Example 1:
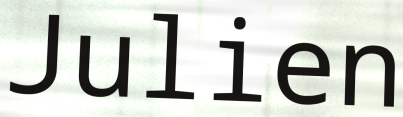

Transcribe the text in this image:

Julien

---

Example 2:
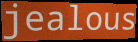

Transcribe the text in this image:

jealous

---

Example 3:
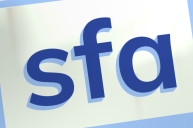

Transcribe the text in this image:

sfa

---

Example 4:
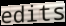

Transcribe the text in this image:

edits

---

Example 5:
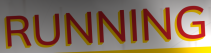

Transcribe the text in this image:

RUNNING